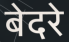
बेदरे